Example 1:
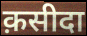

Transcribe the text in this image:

क़सीदा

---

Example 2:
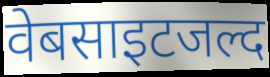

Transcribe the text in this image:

वेबसाइटजल्द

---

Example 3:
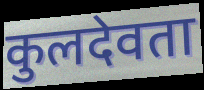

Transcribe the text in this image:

कुलदेवता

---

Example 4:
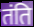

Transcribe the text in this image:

तंति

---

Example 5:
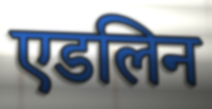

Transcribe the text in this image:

एडलिन